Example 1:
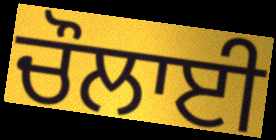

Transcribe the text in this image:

ਚੌਲਾਈ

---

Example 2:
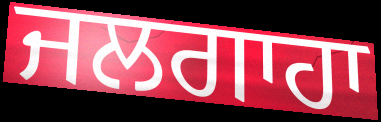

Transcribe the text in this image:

ਜਲਗਾਹਾ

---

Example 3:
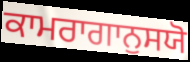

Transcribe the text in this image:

ਕਾਮਰਾਗਾਨੁਸਯੋ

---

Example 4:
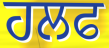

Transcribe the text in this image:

ਹਲਫ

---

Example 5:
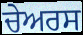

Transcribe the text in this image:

ਚੇਅਰਸ